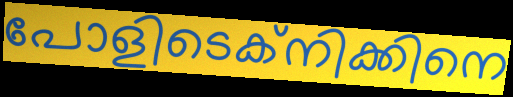
പോളിടെക്നിക്കിനെ